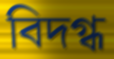
বিদগ্ধ